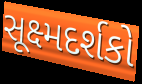
સૂક્ષ્મદર્શકો